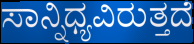
ಸಾನ್ನಿಧ್ಯವಿರುತ್ತದೆ